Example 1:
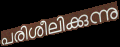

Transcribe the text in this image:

പരിശീലിക്കുന്നു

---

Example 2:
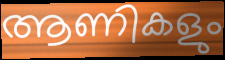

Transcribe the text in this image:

ആണികളും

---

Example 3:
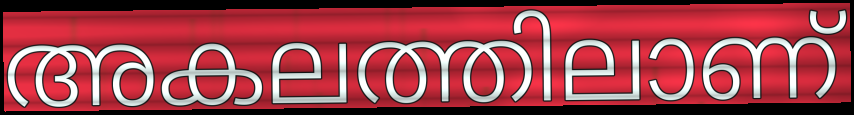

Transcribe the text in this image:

അകലത്തിലാണ്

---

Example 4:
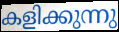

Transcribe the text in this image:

കളിക്കുന്നു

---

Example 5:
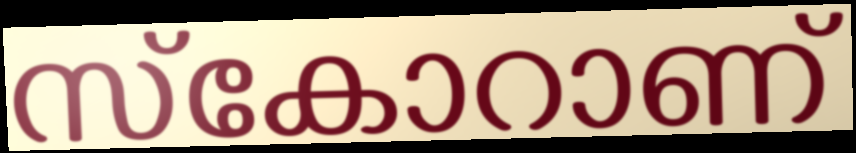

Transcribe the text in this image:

സ്‌കോറാണ്